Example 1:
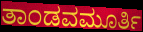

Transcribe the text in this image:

ತಾಂಡವಮೂರ್ತಿ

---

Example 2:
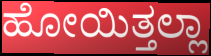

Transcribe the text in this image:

ಹೋಯಿತ್ತಲ್ಲಾ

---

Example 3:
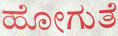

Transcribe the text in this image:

ಹೋಗುತೆ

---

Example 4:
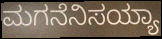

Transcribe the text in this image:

ಮಗನೆನಿಸಯ್ಯಾ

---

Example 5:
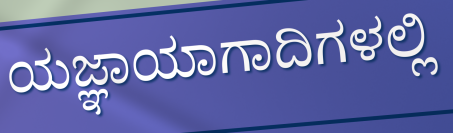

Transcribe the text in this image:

ಯಜ್ಞಾಯಾಗಾದಿಗಳಲ್ಲಿ